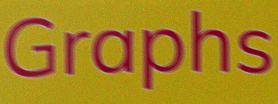
Graphs